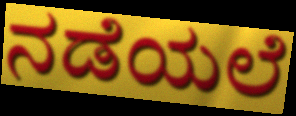
ನಡೆಯಲೆ